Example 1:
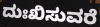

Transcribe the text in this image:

ದುಃಖಿಸುವರೆ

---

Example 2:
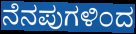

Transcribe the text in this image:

ನೆನಪುಗಳಿಂದ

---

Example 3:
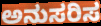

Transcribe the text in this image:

ಅನುಸರಿಸ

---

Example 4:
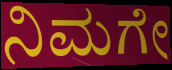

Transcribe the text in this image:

ನಿಮಗೇ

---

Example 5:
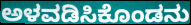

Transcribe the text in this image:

ಅಳವಡಿಸಿಕೊಂಡನು